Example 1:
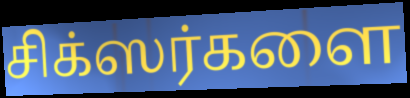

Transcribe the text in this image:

சிக்ஸர்களை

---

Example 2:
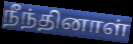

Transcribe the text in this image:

நீந்தினாள்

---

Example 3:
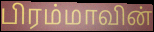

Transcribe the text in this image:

பிரம்மாவின்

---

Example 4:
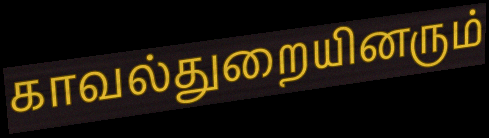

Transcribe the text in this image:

காவல்துறையினரும்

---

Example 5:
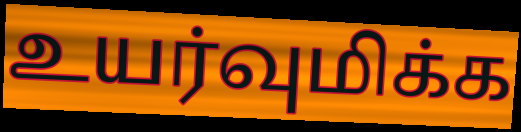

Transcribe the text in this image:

உயர்வுமிக்க